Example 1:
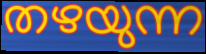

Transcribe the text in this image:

തഴയുന്ന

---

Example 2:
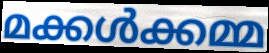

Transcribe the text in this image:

മക്കൾക്കമ്മ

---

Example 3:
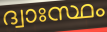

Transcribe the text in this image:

ദ്വാഃസ്ഥം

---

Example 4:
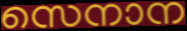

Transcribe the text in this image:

സെനാന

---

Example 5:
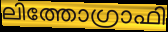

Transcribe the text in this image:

ലിത്തോഗ്രാഫി